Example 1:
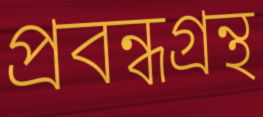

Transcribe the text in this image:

প্ৰবন্ধগ্ৰন্থ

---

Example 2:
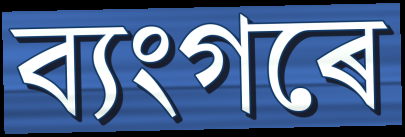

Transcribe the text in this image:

ব্যংগৰে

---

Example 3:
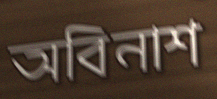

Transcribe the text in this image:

অবিনাশ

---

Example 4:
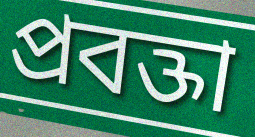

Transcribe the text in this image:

প্ৰবক্তা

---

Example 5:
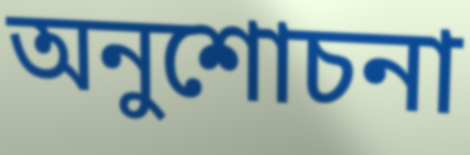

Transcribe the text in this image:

অনুশোচনা